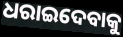
ଧରାଇଦେବାକୁ